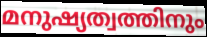
മനുഷ്യത്വത്തിനും